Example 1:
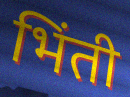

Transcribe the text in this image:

भिंती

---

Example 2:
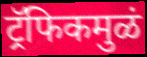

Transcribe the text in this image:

ट्रॅफिकमुळं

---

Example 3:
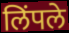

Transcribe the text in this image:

लिंपले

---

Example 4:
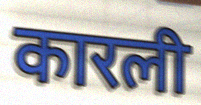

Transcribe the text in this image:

कारली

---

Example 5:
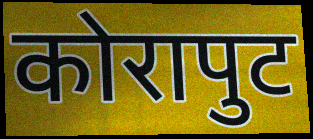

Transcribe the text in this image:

कोरापुट